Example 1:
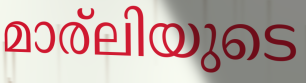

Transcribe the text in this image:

മാര്ലിയുടെ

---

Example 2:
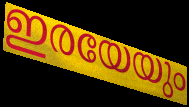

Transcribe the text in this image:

ഇരയേയും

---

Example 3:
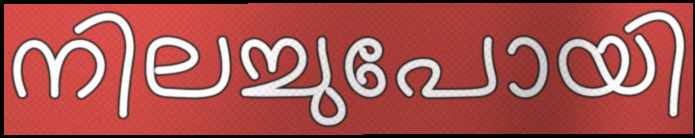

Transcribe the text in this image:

നിലച്ചുപോയി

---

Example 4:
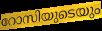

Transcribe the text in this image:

റോസിയുടെയും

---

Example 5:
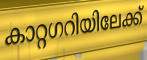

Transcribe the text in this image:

കാറ്റഗറിയിലേക്ക്